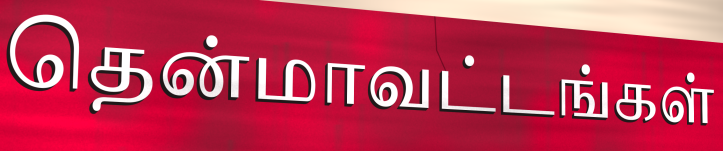
தென்மாவட்டங்கள்